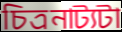
চিত্রনাট্যটা